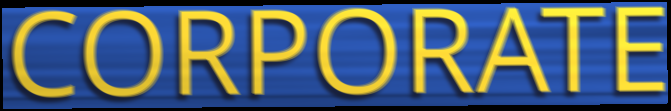
CORPORATE